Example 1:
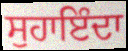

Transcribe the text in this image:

ਸੁਹਾਇੰਦਾ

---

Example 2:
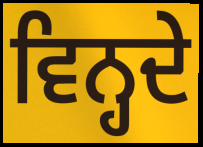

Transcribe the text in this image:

ਵਿਨ੍ਹਦੇ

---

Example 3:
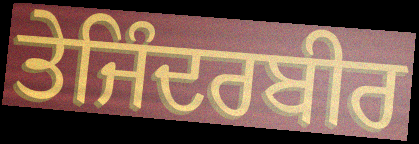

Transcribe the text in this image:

ਤੇਜਿੰਦਰਬੀਰ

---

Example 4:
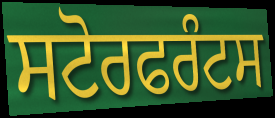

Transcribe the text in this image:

ਸਟੋਰਫਰੰਟਸ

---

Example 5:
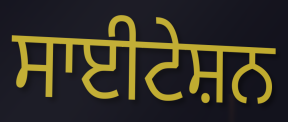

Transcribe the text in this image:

ਸਾਈਟੇਸ਼ਨ